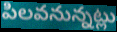
పిలవనున్నట్లు